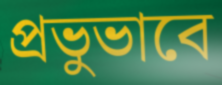
প্রভুভাবে